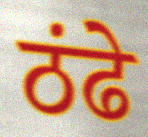
ठंढे